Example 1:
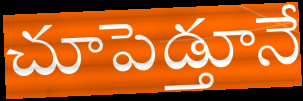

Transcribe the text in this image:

చూపెడ్తూనే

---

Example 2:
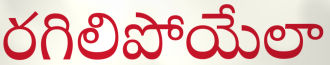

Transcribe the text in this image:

రగిలిపోయేలా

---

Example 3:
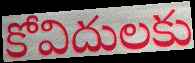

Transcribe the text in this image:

కోవిదులకు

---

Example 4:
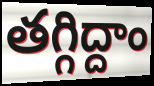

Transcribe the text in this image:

తగ్గిద్దాం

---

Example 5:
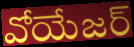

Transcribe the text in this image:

వోయేజర్